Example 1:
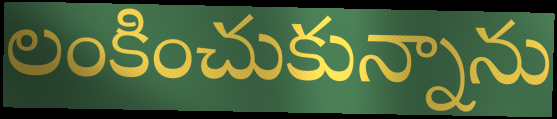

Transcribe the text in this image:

లంకించుకున్నాను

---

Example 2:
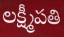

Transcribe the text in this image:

లక్ష్మీపతి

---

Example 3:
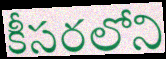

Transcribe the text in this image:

కీసరలోని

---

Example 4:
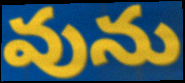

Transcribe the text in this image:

వును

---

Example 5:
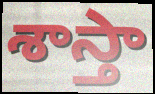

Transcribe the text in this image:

శాస్తా